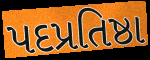
પદપ્રતિષ્ઠા